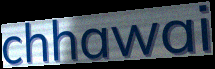
chhawai